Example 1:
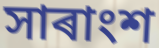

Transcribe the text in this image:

সাৰাংশ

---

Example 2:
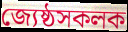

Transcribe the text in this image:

জ্যেষ্ঠসকলক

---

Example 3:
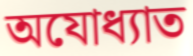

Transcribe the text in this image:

অযোধ্যাত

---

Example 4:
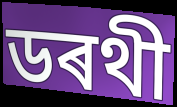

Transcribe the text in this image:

ডৰথী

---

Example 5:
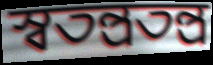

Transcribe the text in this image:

স্বতন্ত্ৰতন্ত্ৰ